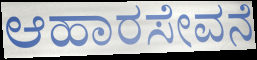
ಆಹಾರಸೇವನೆ